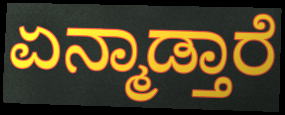
ಏನ್ಮಾಡ್ತಾರೆ